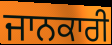
ਜਾਨਕਾਰੀ